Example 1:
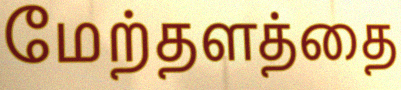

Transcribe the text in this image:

மேற்தளத்தை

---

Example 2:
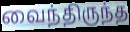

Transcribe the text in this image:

வைந்திருந்த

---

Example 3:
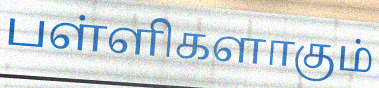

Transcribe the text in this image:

பள்ளிகளாகும்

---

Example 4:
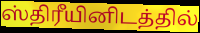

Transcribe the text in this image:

ஸ்திரீயினிடத்தில்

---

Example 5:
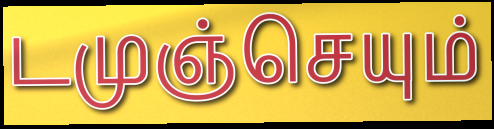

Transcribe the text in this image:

டமுஞ்செயும்